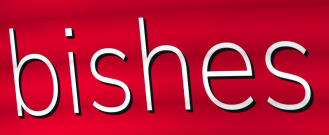
bishes